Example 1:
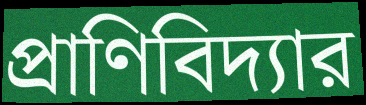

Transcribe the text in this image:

প্রাণিবিদ্যার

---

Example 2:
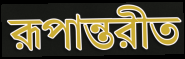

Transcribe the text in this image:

রূপান্তরীত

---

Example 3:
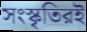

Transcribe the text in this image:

সংস্কৃতিরই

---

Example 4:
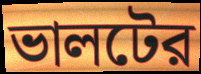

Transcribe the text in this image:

ভালটের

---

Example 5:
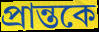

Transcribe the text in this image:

প্রান্তকে